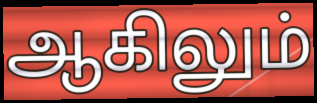
ஆகிலும்